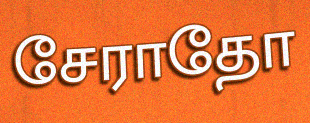
சேராதோ